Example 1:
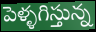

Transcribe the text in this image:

పెళ్ళగిస్తున్న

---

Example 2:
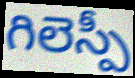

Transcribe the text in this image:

గిలెస్పీ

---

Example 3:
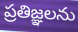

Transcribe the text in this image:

ప్రతిజ్ఞలను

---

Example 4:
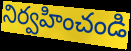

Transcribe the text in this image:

నిర్వహించండి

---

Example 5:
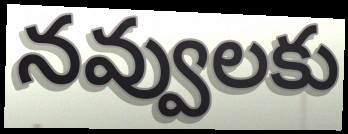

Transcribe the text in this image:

నవ్వులకు